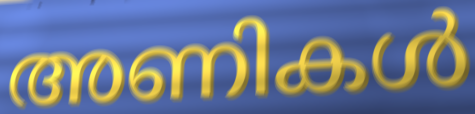
അണികൾ